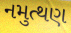
નમુત્થણ